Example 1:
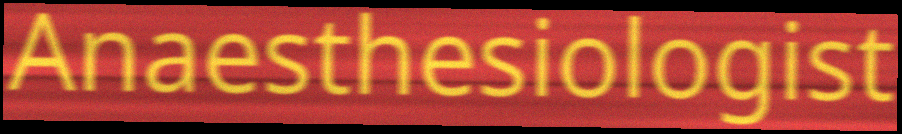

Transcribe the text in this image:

Anaesthesiologist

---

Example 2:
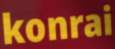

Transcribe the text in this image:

konrai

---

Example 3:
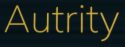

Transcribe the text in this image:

Autrity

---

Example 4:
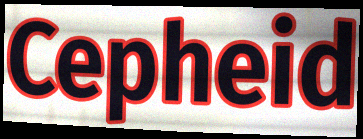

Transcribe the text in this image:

Cepheid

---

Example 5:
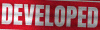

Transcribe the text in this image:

DEVELOPED